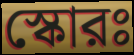
স্কোরঃ